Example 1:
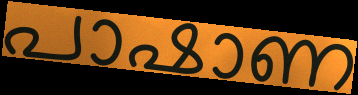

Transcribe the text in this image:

പാഷാണ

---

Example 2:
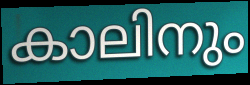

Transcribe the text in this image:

കാലിനും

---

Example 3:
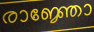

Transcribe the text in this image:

രാജ്ഞോ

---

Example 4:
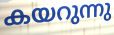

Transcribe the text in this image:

കയറുന്നു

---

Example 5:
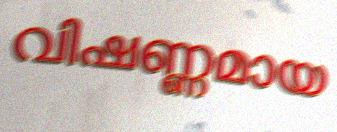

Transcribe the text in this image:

വിഷണ്ണമായ